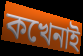
কখেনাই